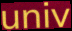
univ